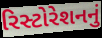
રિસ્ટોરેશનનું